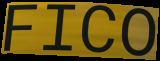
FICO